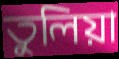
তুলিয়া